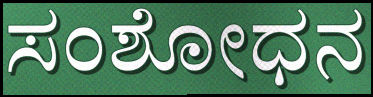
ಸಂಶೋಧನ